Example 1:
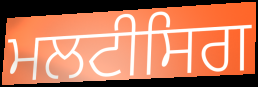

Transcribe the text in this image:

ਮਲਟੀਸਿਗ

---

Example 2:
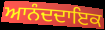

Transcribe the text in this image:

ਆਨੰਦਦਾਇਕ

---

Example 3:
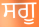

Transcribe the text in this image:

ਸਗੂ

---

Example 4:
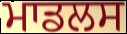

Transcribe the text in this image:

ਮਾਡਲਸ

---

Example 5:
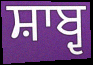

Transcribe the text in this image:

ਸ਼ਾਬ੍ਦ